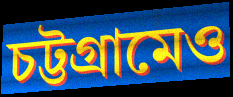
চট্টগ্রামেও